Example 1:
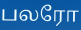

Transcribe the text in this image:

பலரோ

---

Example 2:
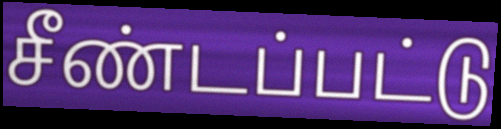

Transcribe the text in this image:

சீண்டப்பட்டு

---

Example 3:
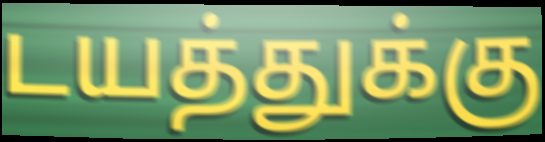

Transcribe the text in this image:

டயத்துக்கு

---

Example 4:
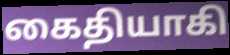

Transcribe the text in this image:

கைதியாகி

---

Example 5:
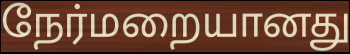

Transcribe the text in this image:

நேர்மறையானது